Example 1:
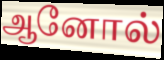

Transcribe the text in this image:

ஆனோல்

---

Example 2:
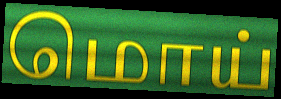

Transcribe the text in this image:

மொய்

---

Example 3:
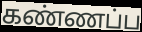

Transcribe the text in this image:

கண்ணப்ப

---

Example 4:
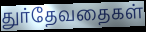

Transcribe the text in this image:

துர்தேவதைகள்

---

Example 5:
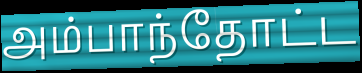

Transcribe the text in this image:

அம்பாந்தோட்ட